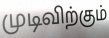
முடிவிற்கும்